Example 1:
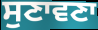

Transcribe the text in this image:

ਸੁਣਾਵਣਾ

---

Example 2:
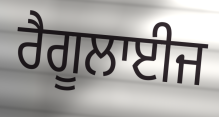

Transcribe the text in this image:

ਰੈਗੂਲਾਈਜ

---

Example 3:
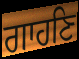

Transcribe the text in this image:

ਗਾਹਣਿ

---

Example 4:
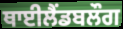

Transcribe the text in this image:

ਥਾਈਲੈਂਡਬਲੌਗ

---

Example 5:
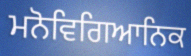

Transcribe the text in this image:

ਮਨੋਵਿਗਿਆਨਿਕ